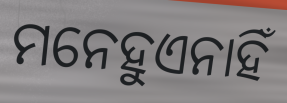
ମନେହୁଏନାହିଁ